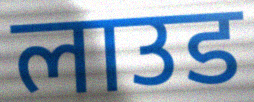
लाउड